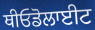
ਥੀਓਡੋਲਾਈਟ